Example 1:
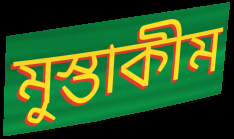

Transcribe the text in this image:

মুস্তাকীম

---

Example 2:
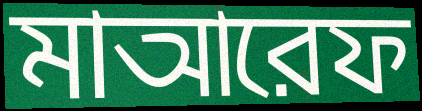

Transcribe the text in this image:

মাআরেফ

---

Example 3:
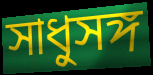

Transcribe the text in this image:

সাধুসঙ্গ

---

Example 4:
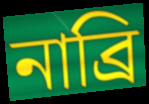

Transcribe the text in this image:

নাব্রি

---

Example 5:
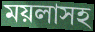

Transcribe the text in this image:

ময়লাসহ